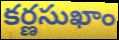
కర్ణసుఖాం